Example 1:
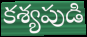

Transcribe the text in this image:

కశ్యపుడి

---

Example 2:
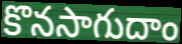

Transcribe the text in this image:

కొనసాగుదాం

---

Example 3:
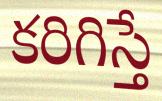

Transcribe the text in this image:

కరిగిస్తే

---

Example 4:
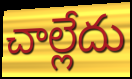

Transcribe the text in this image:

చాల్లేదు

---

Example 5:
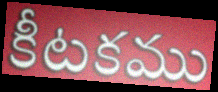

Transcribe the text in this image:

కీటకము